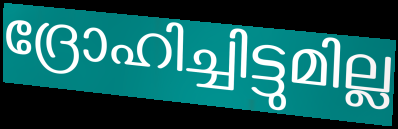
ദ്രോഹിച്ചിട്ടുമില്ല